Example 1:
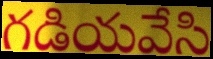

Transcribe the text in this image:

గడియవేసి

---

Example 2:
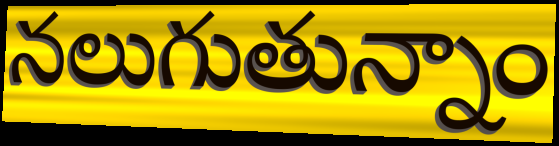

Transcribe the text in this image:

నలుగుతున్నాం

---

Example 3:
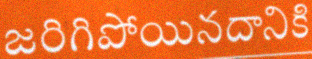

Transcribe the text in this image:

జరిగిపోయినదానికి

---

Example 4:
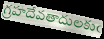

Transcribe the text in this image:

గ్రహదేవతాదులకుఁ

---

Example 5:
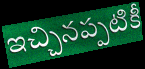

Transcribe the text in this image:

ఇచ్చినప్పటికీ